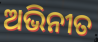
ଅଭିନୀତ